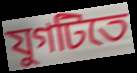
যুগটিতে